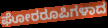
ಘೋರರೂಪಿಗಳಾದ